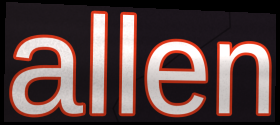
allen